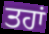
ਤਹਾਂ